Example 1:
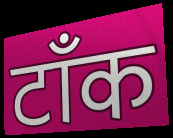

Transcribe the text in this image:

टॉंक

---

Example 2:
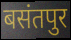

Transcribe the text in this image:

बसंतपुर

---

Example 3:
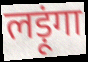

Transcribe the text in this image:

लड़ूंगा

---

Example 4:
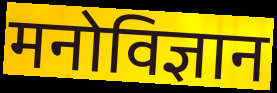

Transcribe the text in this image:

मनोविज्ञान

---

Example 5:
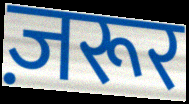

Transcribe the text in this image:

ज़रूर